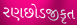
રણછોડજીકૃત